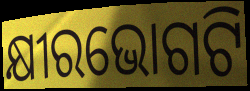
କ୍ଷୀରଭୋଗଟି